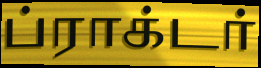
ப்ராக்டர்